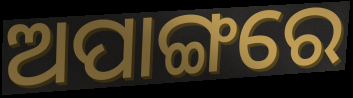
ଅପାଙ୍ଗରେ